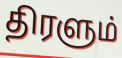
திரளும்